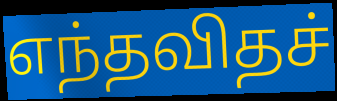
எந்தவிதச்